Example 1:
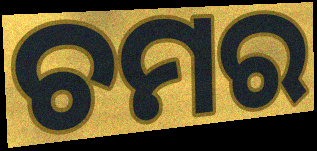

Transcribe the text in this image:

ଚମର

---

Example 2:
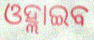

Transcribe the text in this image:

ଓହ୍ଲାଇବ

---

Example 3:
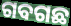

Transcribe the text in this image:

ଗବଗଛ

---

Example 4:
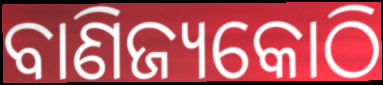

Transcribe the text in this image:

ବାଣିଜ୍ୟକୋଠି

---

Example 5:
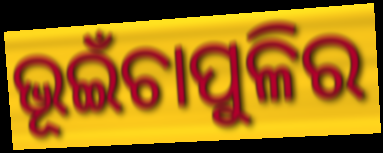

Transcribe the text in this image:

ଭୂଇଁଚାପୁଳିର